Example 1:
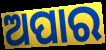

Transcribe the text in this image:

ଅପାର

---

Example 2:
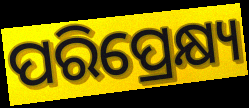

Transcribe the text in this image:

ପରିପ୍ରେକ୍ଷ୍ୟ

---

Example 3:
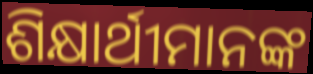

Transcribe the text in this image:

ଶିକ୍ଷାର୍ଥୀମାନଙ୍କ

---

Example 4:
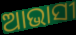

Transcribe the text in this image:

ଆଭାସୀ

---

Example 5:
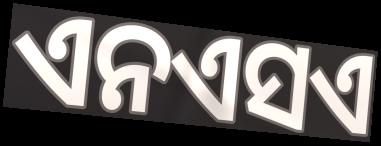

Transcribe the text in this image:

ଏନଏସଏ